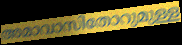
അമാവാസിതോറുമുള്ള